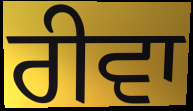
ਰੀਵਾ